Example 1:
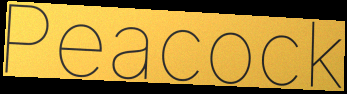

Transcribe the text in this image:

Peacock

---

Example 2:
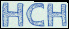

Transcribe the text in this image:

HCH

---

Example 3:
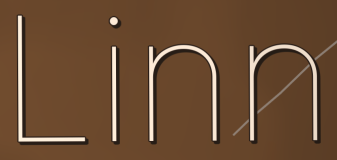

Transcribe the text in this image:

Linn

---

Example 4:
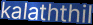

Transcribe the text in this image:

kalaththil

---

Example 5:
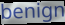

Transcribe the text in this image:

benign